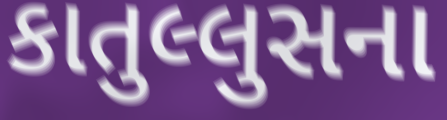
કાતુલ્લુસના